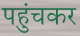
पहुंचकर